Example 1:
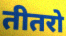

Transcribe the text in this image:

तीतरो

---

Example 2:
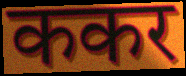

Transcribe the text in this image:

ककर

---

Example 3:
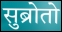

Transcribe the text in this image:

सुब्रोतो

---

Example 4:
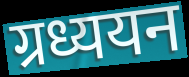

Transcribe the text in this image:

ग्रध्ययन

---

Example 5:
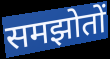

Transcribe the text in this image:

समझोतों